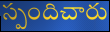
స్పందిచారు